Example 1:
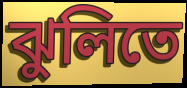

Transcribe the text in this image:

ঝুলিতে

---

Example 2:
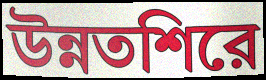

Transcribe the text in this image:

উন্নতশিরে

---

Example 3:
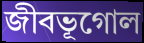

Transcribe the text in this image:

জীবভূগোল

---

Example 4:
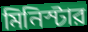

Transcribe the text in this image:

মিনিস্টার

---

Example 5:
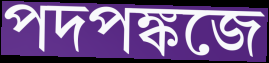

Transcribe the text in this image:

পদপঙ্কজে